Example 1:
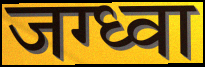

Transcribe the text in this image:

जग्ध्वा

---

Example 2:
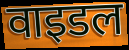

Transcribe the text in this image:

वाइडल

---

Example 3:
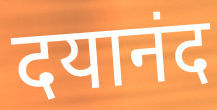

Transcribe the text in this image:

दयानंद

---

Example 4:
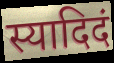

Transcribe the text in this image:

स्यादिदं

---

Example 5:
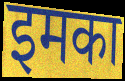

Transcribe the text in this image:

इमका